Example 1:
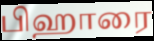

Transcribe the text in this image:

பிஹாரை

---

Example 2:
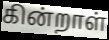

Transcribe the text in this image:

கின்றாள்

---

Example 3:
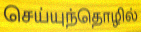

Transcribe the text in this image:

செய்யுந்தொழில்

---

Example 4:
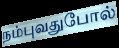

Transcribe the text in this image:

நம்புவதுபோல்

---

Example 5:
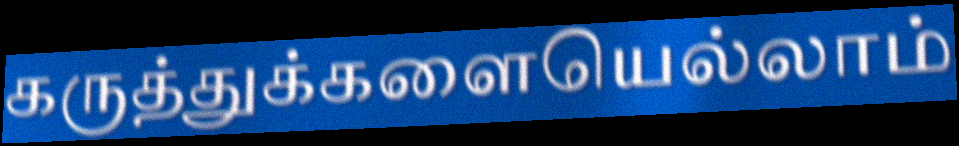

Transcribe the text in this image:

கருத்துக்களையெல்லாம்